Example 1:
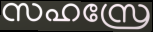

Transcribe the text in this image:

സഹസ്രേ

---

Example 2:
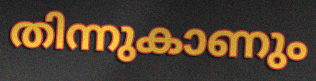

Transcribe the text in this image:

തിന്നുകാണും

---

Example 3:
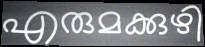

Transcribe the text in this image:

എരുമക്കുഴി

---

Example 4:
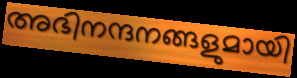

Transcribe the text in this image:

അഭിനന്ദനങ്ങളുമായി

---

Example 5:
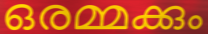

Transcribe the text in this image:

ഒരമ്മക്കും